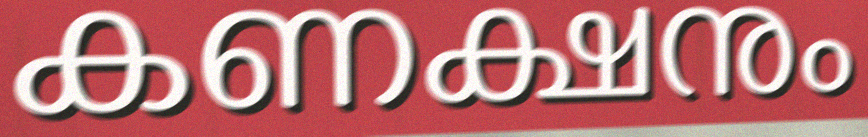
കണക്ഷനും